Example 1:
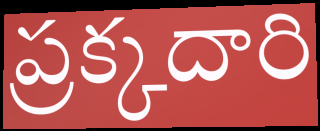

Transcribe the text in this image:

ప్రక్కదారి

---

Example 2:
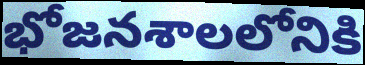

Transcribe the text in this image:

భోజనశాలలోనికి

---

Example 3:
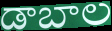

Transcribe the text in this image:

డాబాల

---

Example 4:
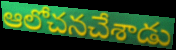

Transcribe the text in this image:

ఆలోచనచేశాడు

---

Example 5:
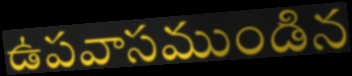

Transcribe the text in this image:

ఉపవాసముండిన